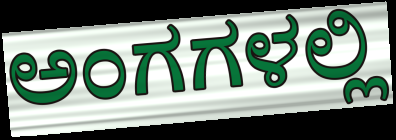
ಅಂಗಗಳಲ್ಲಿ